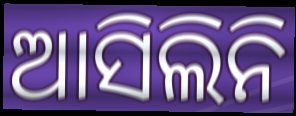
ଆସିଲିନି